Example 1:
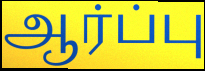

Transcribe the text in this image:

ஆர்ப்பு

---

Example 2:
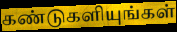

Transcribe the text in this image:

கண்டுகளியுங்கள்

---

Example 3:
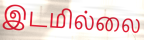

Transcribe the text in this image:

இடமில்லை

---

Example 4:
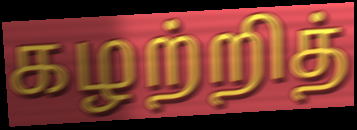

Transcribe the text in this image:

கழற்றித்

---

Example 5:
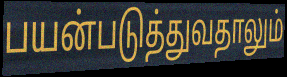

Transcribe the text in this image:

பயன்படுத்துவதாலும்